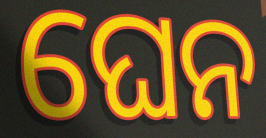
ଘେନ